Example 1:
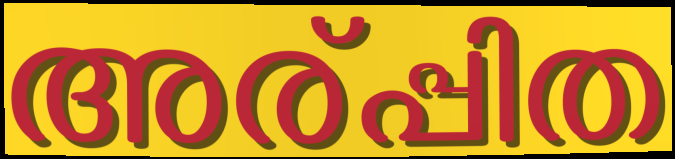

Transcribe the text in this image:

അര്പ്പിത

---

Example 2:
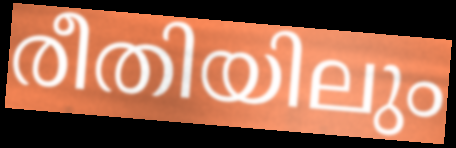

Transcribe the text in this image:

രീതിയിലും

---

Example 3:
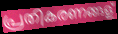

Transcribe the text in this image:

പ്രതികരണങ്ങള്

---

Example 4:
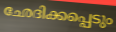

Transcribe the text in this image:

ഛേദിക്കപ്പെടും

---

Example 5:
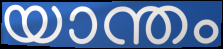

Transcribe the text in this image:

യാന്തം